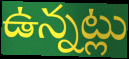
ఉన్నట్లు